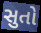
સુતો